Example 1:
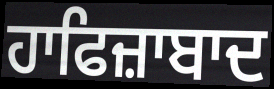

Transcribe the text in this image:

ਹਾਫਿਜ਼ਾਬਾਦ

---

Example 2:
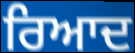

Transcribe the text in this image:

ਰਿਆਦ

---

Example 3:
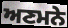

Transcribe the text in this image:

ਅਣਮਨੇ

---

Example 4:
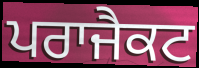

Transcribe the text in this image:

ਪਰਾਜੈਕਟ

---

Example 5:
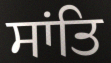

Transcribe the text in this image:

ਸਾਂਤਿ